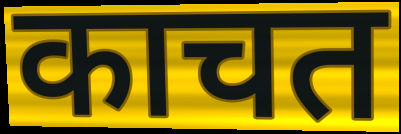
काचत